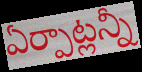
ఏర్పాట్లన్నీ